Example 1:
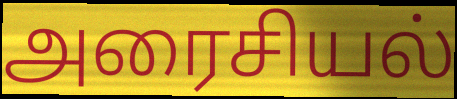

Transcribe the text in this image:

அரைசியல்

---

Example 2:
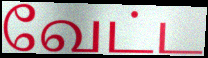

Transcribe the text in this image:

வேட்ட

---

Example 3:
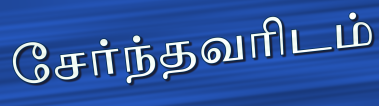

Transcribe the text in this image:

சேர்ந்தவரிடம்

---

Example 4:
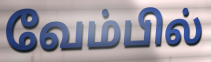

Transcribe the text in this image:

வேம்பில்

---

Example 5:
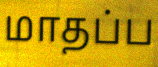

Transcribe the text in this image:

மாதப்ப